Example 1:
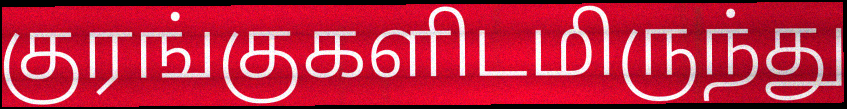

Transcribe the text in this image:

குரங்குகளிடமிருந்து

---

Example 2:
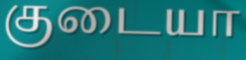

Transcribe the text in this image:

குடையா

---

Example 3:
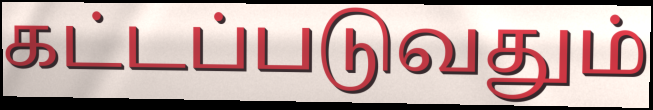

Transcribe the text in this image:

கட்டப்படுவதும்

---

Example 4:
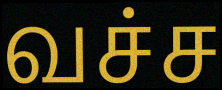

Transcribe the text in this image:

வச்ச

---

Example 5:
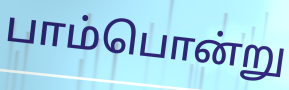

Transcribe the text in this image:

பாம்பொன்று